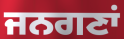
ਜਨਗਣਾਂ